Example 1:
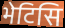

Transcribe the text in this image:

भेटिसि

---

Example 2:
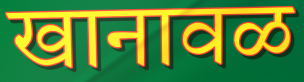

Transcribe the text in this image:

खानावळ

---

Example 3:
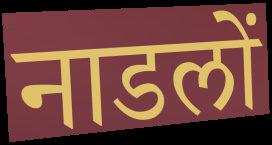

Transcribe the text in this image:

नाडलों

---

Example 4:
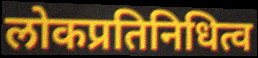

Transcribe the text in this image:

लोकप्रतिनिधित्व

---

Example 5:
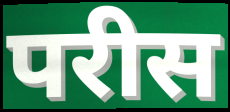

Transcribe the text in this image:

परीस